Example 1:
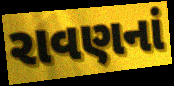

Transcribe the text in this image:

રાવણનાં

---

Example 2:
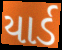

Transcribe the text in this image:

યાર્ડ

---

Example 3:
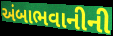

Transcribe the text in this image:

અંબાભવાનીની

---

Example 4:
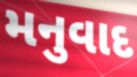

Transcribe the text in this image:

મનુવાદ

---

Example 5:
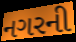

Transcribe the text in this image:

નગરની